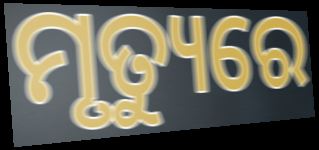
ମୃତ୍ୟୁରେ